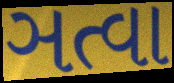
ઞત્વા